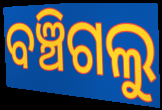
ବଞ୍ଚିଗଲୁ